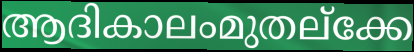
ആദികാലംമുതല്ക്കേ